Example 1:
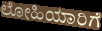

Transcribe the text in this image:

ಲೋಹಿಯಾರಿಗೆ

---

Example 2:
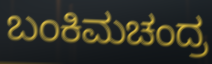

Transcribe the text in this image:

ಬಂಕಿಮಚಂದ್ರ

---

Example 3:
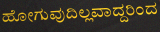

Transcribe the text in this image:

ಹೋಗುವುದಿಲ್ಲವಾದ್ದರಿಂದ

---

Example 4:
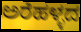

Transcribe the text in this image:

ಅರೆಹಳ್ಳದ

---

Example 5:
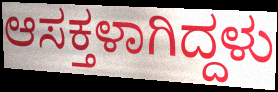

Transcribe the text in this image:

ಆಸಕ್ತಳಾಗಿದ್ದಳು